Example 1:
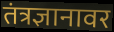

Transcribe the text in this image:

तंत्रज्ञानावर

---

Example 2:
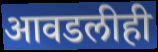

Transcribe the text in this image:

आवडलीही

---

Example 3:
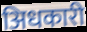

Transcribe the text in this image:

अिधकारी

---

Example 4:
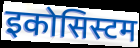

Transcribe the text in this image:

इकोसिस्टम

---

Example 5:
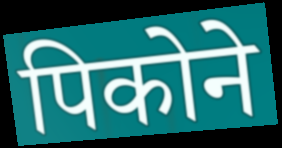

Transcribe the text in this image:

पिकोने